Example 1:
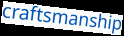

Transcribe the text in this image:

craftsmanship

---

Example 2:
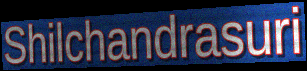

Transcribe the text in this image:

Shilchandrasuri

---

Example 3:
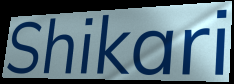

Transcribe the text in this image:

Shikari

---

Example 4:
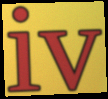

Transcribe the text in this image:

iv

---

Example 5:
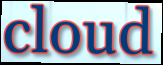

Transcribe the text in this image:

cloud